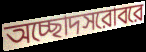
অচ্ছোদসরোবরে